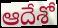
ఆదేశో